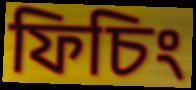
ফিচিং